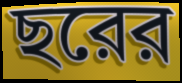
ছরের